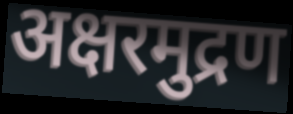
अक्षरमुद्रण